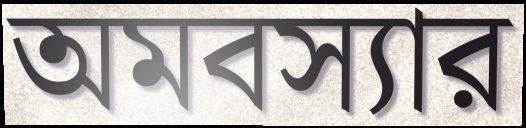
অমবস্যার